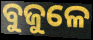
ବୁଜୁଳେ